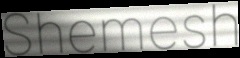
Shemesh